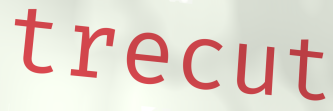
trecut